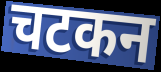
चटकन